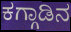
ಕಗ್ಗಾಡಿನ